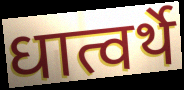
धात्वर्थे